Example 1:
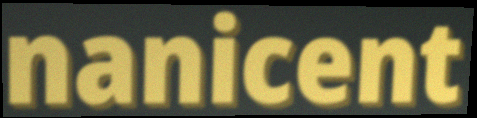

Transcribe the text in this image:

nanicent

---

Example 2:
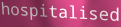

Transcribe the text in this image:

hospitalised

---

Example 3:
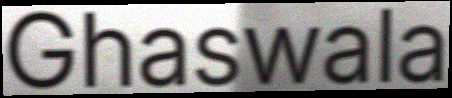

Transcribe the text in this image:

Ghaswala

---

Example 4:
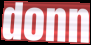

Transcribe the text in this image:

donn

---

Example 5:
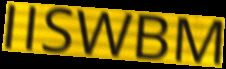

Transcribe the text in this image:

IISWBM